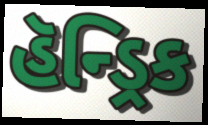
હૅન્ડ્રિક